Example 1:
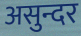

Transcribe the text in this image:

असुन्दर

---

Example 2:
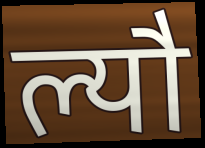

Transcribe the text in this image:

ल्यौ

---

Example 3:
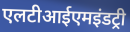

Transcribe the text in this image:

एलटीआईएमइंडट्री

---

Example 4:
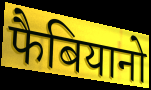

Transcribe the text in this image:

फैबियानो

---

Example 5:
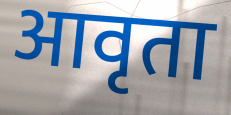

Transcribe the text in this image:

आवृता